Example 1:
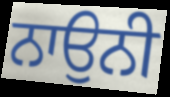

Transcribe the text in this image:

ਨਾਉਨੀ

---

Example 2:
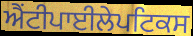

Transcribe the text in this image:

ਐਂਟੀਪਾਈਲੇਪਟਿਕਸ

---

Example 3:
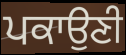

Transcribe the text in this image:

ਪਕਾਉਣੀ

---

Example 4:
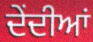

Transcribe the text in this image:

ਦੇਂਦੀਆਂ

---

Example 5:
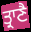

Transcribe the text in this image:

ਤ੍ਰਾਣੈ